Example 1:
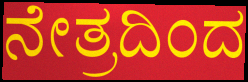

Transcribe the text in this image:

ನೇತ್ರದಿಂದ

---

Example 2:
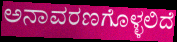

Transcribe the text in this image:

ಅನಾವರಣಗೊಳ್ಳಲಿದೆ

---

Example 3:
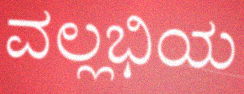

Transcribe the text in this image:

ವಲ್ಲಭಿಯ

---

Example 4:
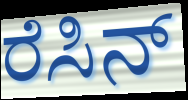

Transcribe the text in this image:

ರೆಸಿನ್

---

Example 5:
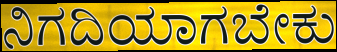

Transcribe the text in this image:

ನಿಗದಿಯಾಗಬೇಕು